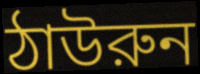
ঠাউরুন